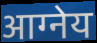
आग्नेय